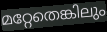
മറ്റേതെങ്കിലും